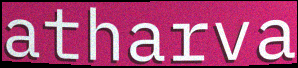
atharva